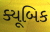
ક્યૂબિક